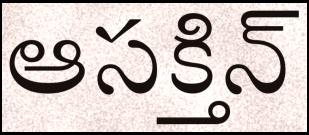
ఆసక్తిన్